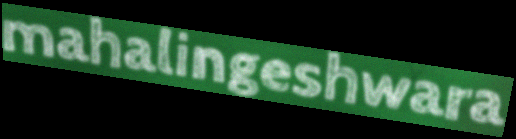
mahalingeshwara